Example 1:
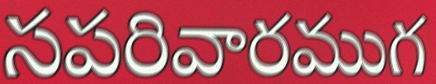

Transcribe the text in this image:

సపరివారముగ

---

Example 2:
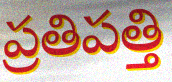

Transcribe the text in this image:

ప్రతిపత్తి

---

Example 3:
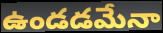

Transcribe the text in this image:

ఉండడమేనా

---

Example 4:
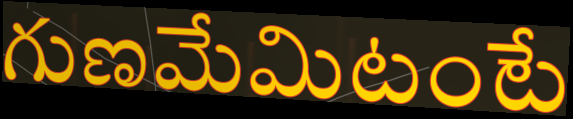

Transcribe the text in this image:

గుణమేమిటంటే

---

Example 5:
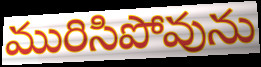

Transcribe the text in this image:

మురిసిపోవును